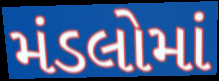
મંડલોમાં